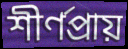
শীর্ণপ্রায়